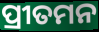
ପ୍ରୀତମନ